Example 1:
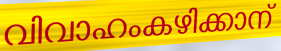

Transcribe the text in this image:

വിവാഹംകഴിക്കാന്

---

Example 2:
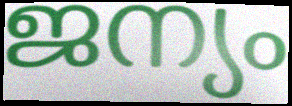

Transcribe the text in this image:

ജന്യം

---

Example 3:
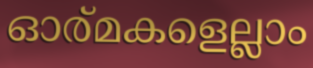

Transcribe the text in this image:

ഓര്മകളെല്ലാം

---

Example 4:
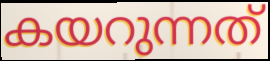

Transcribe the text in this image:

കയറുന്നത്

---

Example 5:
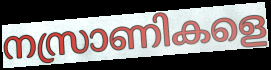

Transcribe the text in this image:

നസ്രാണികളെ